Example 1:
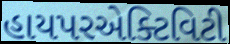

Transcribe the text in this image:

હાયપરએક્ટિવિટી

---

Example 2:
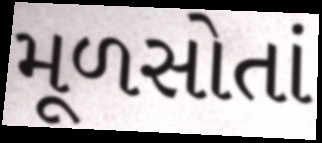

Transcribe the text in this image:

મૂળસોતાં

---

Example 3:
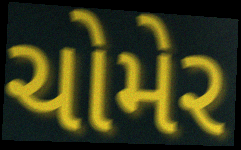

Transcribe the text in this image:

ચોમેર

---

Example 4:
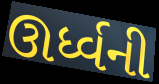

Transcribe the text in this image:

ઊર્ધ્વની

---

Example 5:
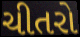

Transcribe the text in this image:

ચીતરો